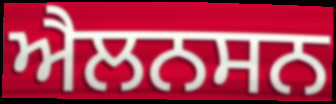
ਐਲਨਸਨ